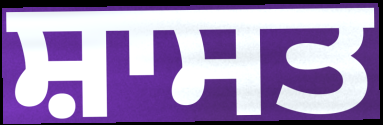
ਸ਼ਾਸਤ